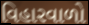
વિહારવાળો